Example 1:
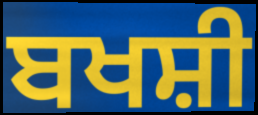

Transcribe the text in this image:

ਬਖਸ਼ੀ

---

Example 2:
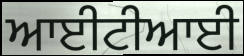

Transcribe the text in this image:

ਆਈਟੀਆਈ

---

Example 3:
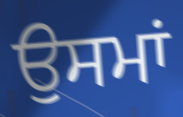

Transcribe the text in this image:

ਉਸਮਾਂ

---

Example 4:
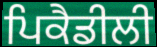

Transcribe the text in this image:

ਪਿਕੈਡੀਲੀ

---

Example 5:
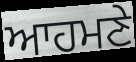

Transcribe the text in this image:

ਆਹਮਣੇ